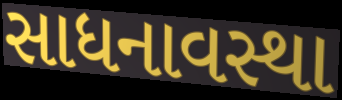
સાધનાવસ્થા